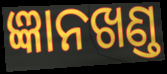
ଜ୍ଞାନଖଣ୍ଡ